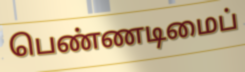
பெண்ணடிமைப்